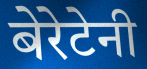
बेरेटेनी